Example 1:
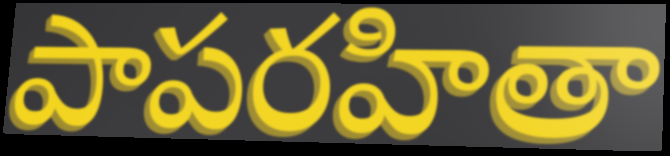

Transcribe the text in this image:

పాపరహితా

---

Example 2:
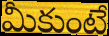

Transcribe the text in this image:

మీకుంటే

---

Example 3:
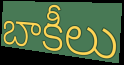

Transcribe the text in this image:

బాకీలు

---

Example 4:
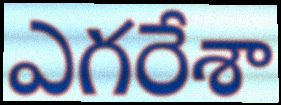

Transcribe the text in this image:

ఎగరేశా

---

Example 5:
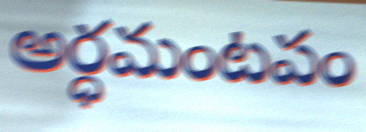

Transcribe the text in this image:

అర్ధమంటపం